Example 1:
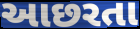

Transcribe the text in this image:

આછરતા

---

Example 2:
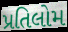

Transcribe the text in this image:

પ્રતિલોમ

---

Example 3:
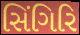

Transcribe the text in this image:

સિંગિરિ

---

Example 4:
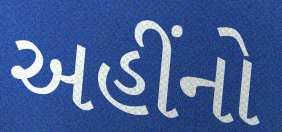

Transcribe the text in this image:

અહીંનો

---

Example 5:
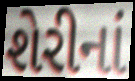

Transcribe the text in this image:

શેરીનાં